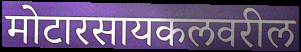
मोटारसायकलवरील